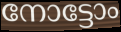
നോട്ടോം